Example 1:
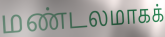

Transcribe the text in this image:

மண்டலமாகக்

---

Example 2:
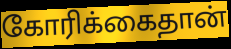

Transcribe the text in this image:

கோரிக்கைதான்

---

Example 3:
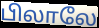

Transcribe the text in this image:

பிலாலே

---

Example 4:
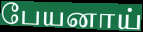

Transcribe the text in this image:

பேயனாய்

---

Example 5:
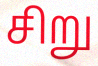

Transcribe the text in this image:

சிறு